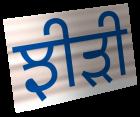
ਝੀੜੀ